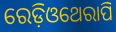
ରେଡ଼ିଓଥେରାପି